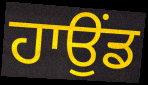
ਹਾਉਂਡ